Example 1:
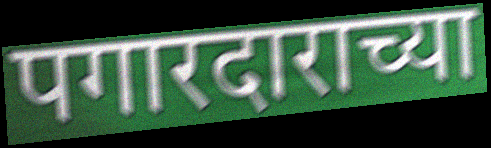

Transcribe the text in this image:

पगारदाराच्या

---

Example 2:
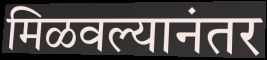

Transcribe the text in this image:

मिळवल्यानंतर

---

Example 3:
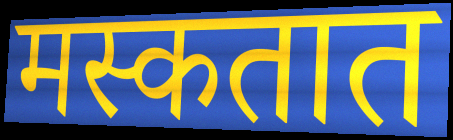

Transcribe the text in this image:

मस्कतात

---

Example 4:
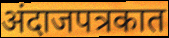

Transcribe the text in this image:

अंदाजपत्रकात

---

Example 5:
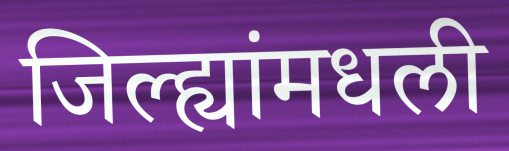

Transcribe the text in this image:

जिल्ह्यांमधली